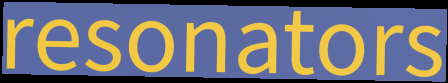
resonators